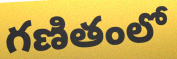
గణితంలో